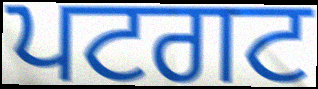
ਪਟਗਟ